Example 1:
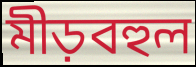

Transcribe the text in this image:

মীড়বহুল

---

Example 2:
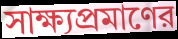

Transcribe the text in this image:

সাক্ষ্যপ্রমাণের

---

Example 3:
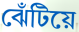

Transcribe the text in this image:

ঝেঁটিয়ে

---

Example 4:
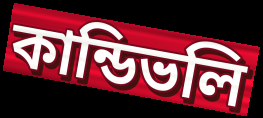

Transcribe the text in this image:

কান্ডিভলি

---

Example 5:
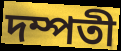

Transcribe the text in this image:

দম্পতী